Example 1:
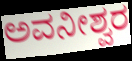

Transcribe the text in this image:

ಅವನೀಶ್ವರ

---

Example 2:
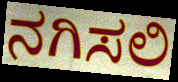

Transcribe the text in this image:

ನಗಿಸಲಿ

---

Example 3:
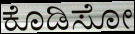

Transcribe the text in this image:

ಕೊಡಿಸೋ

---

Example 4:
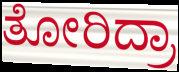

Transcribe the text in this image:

ತೋರಿದ್ರಾ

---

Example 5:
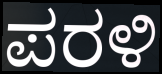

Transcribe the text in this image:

ಪರಳಿ